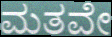
ಮತವೇ